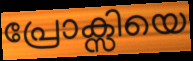
പ്രോക്സിയെ